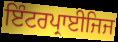
ਇੰਟਰਪ੍ਰਾਈਜਿਜ